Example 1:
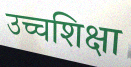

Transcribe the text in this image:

उच्‍चशिक्षा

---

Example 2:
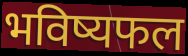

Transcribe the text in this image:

भविष्‍यफल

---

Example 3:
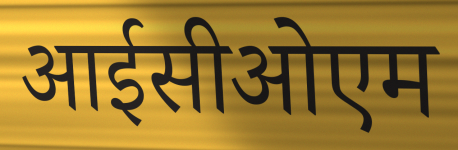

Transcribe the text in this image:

आईसीओएम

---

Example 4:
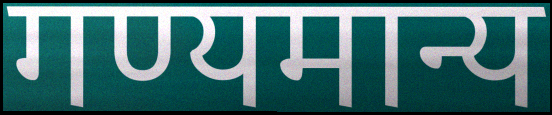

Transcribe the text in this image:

गण्यमान्य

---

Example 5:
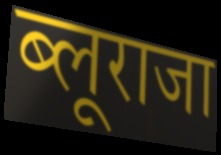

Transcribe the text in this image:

ब्लूराजा